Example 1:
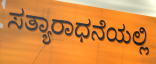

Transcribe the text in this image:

ಸತ್ಯಾರಾಧನೆಯಲ್ಲಿ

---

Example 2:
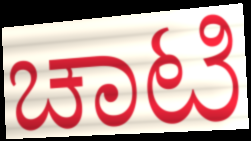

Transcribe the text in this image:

ಚಾಟಿ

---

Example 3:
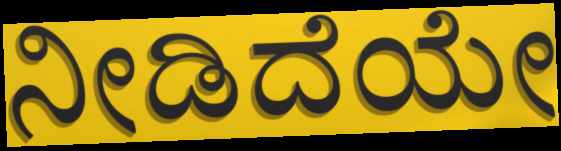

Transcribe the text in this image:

ನೀಡಿದೆಯೇ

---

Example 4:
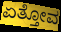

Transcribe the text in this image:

ಏತ್ತೋವ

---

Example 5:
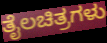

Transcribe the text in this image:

ತೈಲಚಿತ್ರಗಳು